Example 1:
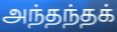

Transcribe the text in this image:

அந்தந்தக்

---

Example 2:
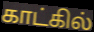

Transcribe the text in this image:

காட்கில்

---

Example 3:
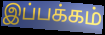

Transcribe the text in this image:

இப்பக்கம்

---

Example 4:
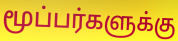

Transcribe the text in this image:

மூப்பர்களுக்கு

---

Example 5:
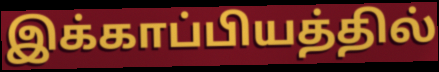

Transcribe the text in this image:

இக்காப்பியத்தில்